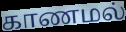
காணமல்